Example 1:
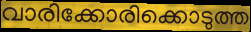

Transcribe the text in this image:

വാരിക്കോരിക്കൊടുത്ത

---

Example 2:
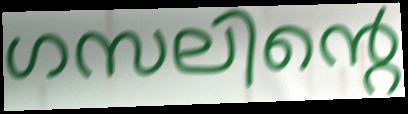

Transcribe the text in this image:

ഗസലിന്റെ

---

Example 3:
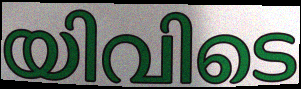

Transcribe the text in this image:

യിവിടെ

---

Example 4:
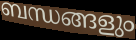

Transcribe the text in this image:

ബന്ധങ്ങളും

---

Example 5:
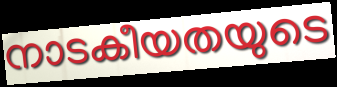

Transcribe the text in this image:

നാടകീയതയുടെ